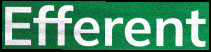
Efferent